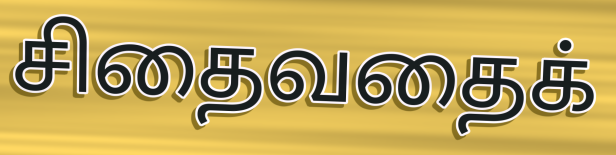
சிதைவதைக்